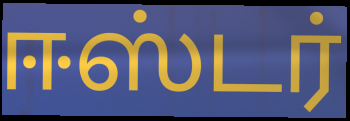
ஈஸ்டர்